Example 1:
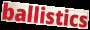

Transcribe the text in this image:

ballistics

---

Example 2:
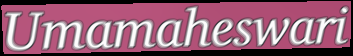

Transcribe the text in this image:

Umamaheswari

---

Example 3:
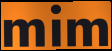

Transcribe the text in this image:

mim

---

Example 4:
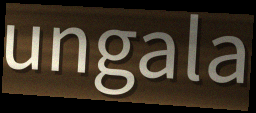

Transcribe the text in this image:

ungala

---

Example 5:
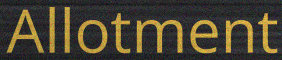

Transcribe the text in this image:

Allotment